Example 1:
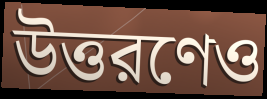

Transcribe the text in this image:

উত্তরণেও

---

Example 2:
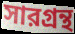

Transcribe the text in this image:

সারগ্রন্থ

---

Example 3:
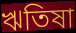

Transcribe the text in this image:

ঋতিষা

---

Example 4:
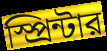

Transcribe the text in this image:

স্প্রিন্টার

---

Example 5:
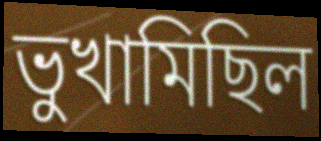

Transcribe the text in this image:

ভুখামিছিল